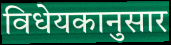
विधेयकानुसार